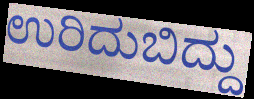
ಉರಿದುಬಿದ್ದು